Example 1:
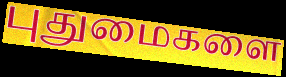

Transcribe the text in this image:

புதுமைகளை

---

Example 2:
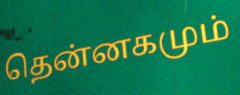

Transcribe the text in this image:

தென்னகமும்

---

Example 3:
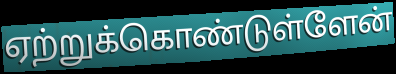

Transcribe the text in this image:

ஏற்றுக்கொண்டுள்ளேன்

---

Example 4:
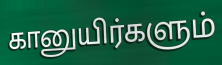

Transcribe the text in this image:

கானுயிர்களும்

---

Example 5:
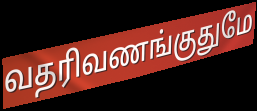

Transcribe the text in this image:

வதரிவணங்குதுமே